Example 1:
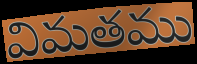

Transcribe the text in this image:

విమతము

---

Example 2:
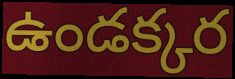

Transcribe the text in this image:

ఉండక్కర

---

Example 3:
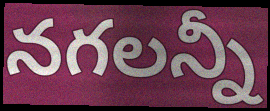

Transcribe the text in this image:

నగలన్నీ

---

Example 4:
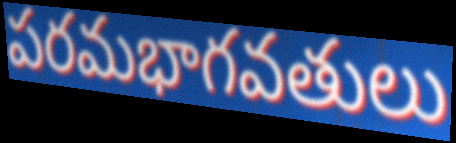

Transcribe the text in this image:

పరమభాగవతులు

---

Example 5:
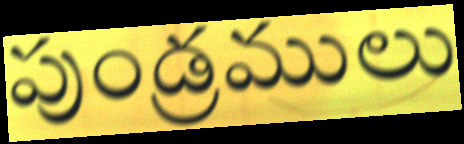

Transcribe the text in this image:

పుండ్రములు